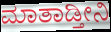
ಮಾತಾಡ್ತೀನಿ